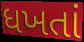
ધખતાં